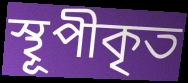
স্থূপীকৃত